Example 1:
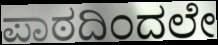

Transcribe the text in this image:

ಪಾಠದಿಂದಲೇ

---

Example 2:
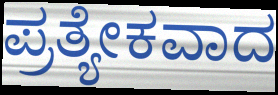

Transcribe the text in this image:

ಪ್ರತ್ಯೇಕವಾದ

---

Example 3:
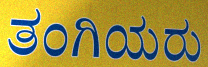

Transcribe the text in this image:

ತಂಗಿಯರು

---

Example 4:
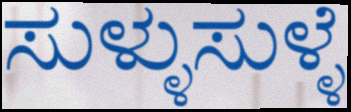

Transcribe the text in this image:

ಸುಳ್ಳುಸುಳ್ಳೆ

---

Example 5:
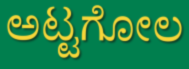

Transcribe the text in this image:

ಅಟ್ಟಗೋಲ